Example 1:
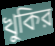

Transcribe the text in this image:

খুকির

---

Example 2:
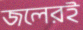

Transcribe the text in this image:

জলেরই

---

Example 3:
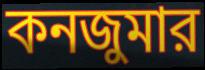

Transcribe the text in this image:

কনজুমার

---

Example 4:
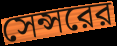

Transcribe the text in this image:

সেন্সরের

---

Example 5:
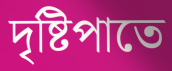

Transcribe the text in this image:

দৃষ্টিপাতে